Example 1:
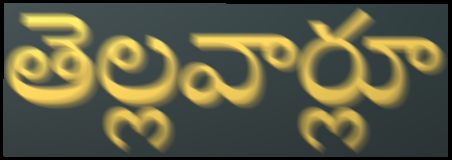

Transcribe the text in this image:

తెల్లవార్లూ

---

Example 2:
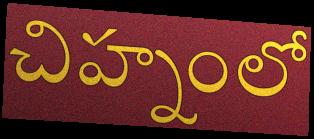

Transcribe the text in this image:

చిహ్నంలో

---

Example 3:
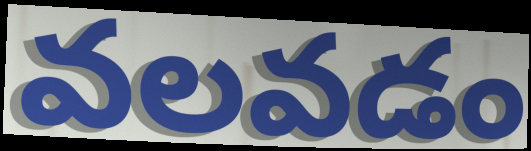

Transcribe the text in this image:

వలవడం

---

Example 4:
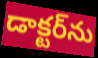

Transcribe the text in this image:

డాక్టర్‌ను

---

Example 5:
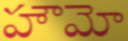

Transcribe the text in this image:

హౌమో